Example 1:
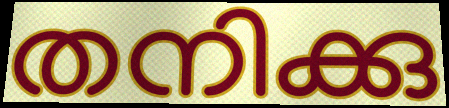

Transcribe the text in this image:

തനിക്കു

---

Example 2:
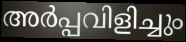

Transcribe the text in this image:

അർപ്പവിളിച്ചും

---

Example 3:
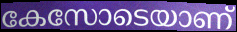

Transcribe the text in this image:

കേസോടെയാണ്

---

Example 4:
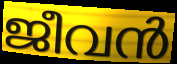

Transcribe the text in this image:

ജീവൻ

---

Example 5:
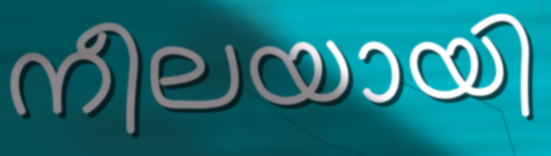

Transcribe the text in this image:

നീലയായി